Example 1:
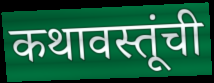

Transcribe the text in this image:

कथावस्तूंची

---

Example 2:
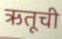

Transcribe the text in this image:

ऋतूची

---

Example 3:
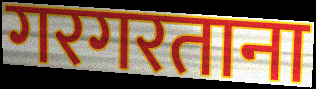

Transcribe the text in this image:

गरगरताना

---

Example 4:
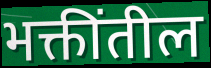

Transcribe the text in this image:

भक्तींतील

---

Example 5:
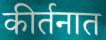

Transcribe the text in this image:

कीर्तनात